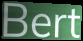
Bert